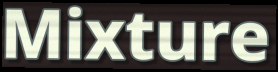
Mixture